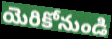
యెరికోనుండి